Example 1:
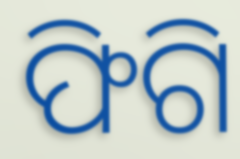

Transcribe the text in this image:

ଫିଗି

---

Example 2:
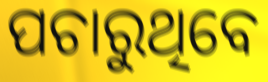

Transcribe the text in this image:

ପଚାରୁଥିବେ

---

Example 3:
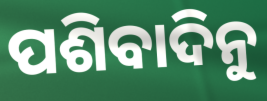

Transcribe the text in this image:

ପଶିବାଦିନୁ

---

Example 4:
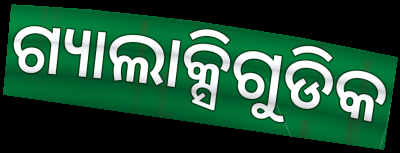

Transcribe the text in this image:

ଗ୍ୟାଲାକ୍ସିଗୁଡିକ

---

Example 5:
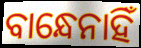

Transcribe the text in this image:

ବାନ୍ଧେନାହିଁ